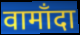
वामाँदा